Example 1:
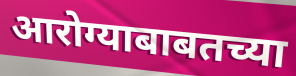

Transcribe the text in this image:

आरोग्याबाबतच्या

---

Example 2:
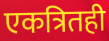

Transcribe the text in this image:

एकत्रितही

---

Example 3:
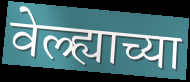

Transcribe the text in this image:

वेल्ह्याच्या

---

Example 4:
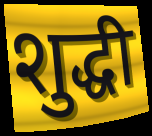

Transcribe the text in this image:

शुद्धी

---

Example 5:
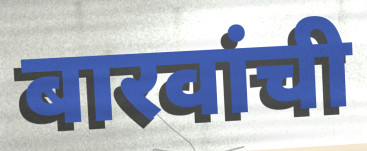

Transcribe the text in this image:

बारवांची